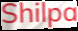
Shilpa